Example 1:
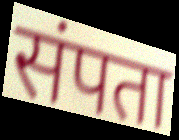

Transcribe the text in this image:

संपता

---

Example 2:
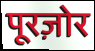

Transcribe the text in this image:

पूरज़ोर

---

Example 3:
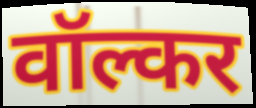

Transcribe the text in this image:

वॉल्कर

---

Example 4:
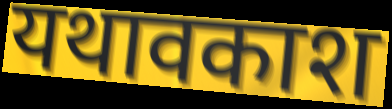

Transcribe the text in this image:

यथावकाश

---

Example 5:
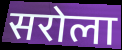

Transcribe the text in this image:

सरोला